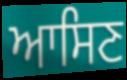
ਆਸਿਣ